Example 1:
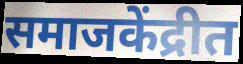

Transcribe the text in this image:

समाजकेंद्रीत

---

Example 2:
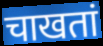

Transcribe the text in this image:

चाखतां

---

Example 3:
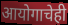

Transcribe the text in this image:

आयोगाचेही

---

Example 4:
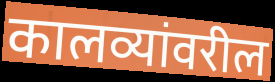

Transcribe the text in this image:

कालव्यांवरील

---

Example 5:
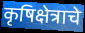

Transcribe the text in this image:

कृषिक्षेत्राचे